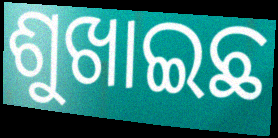
ଶୁଖାଇଛ